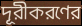
দূরীকরণের